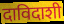
दाविदाशी